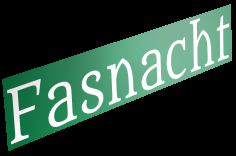
Fasnacht